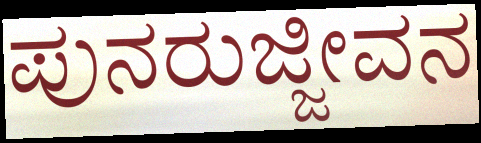
ಪುನರುಜ್ಜೀವನ